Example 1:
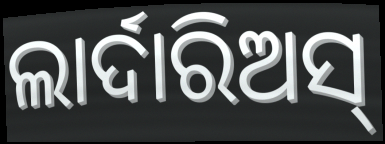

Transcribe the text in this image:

ଲାର୍ଦାରିଅସ୍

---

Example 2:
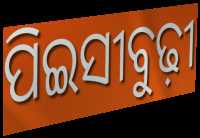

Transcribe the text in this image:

ପିଇସୀବୁଢ଼ୀ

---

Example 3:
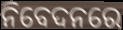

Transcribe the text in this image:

ନିବେଦନରେ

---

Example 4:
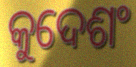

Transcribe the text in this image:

କୁଦେଶଂ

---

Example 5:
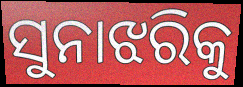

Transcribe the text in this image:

ସୁନାଝରିକୁ